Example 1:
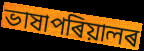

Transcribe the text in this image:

ভাষাপৰিয়ালৰ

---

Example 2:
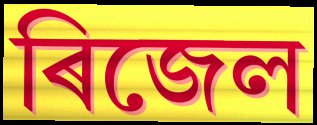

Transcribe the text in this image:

ৰিজেল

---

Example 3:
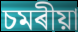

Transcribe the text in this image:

চমৰীয়া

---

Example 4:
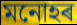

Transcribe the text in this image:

মনোহৰ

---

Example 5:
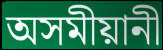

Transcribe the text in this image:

অসমীয়ানী